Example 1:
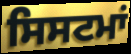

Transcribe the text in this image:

ਸਿਸਟਮਾਂ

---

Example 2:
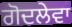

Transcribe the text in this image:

ਗੋਦਲੇਵਾ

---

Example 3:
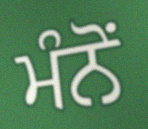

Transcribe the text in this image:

ਮੰਨੋਂ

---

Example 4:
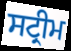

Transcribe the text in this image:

ਸਟ੍ਰੀਮ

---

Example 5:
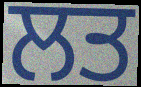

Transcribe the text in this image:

ਲਤ